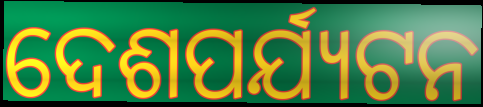
ଦେଶପର୍ଯ୍ୟଟନ